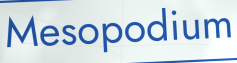
Mesopodium